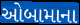
ઓબામાના